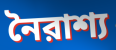
নৈরাশ্য